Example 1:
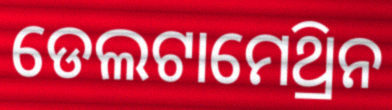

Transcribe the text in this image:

ଡେଲଟାମେଥ୍ରିନ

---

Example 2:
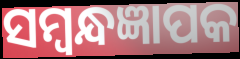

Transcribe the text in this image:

ସମ୍ବନ୍ଧଜ୍ଞାପକ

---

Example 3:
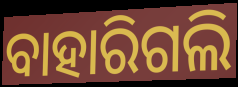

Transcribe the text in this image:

ବାହାରିଗଲି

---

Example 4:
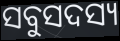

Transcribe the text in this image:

ସବୁସଦସ୍ୟ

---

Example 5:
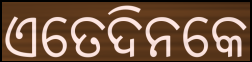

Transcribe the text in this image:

ଏତେଦିନକେ